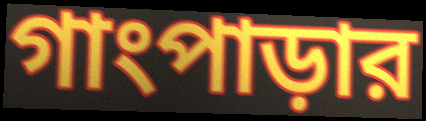
গাংপাড়ার